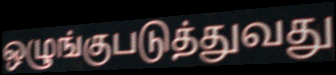
ஒழுங்குபடுத்துவது